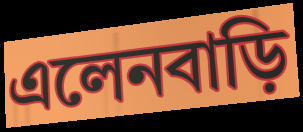
এলেনবাড়ি